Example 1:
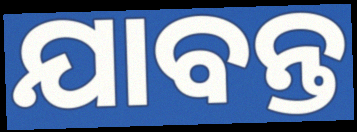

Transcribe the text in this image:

ଯାବନ୍ତ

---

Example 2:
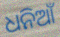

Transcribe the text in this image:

ଧନିଆଁ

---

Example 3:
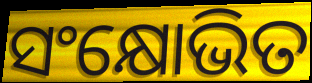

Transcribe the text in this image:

ସଂକ୍ଷୋଭିତ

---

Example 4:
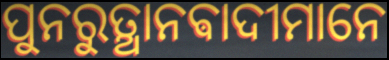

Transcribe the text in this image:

ପୁନରୁତ୍ଥାନଵାଦୀମାନେ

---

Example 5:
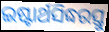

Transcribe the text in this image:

ଇଷ୍ଟାର୍ଥସିଦ୍ଧରସ୍ତୁ